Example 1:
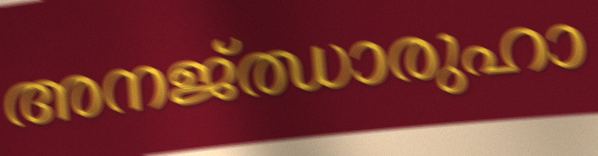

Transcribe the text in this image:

അനജ്ഝാരുഹാ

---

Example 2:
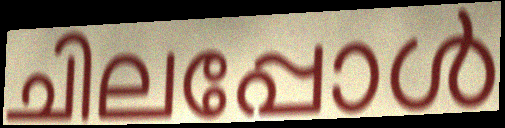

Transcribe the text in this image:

ചിലപ്പോൾ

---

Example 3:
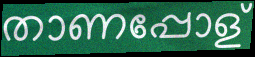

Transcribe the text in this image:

താണപ്പോള്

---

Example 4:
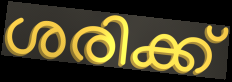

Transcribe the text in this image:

ശരിക്ക്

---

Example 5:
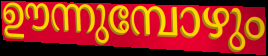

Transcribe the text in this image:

ഊന്നുമ്പോഴും